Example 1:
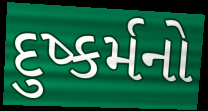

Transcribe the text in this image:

દુષ્કર્મનો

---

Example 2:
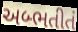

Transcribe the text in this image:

અબ્ભતીતં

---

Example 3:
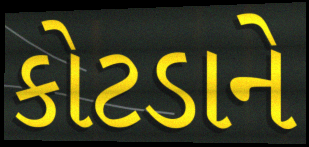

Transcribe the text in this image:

કોટડાને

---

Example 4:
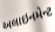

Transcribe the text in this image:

અલાઇનમેન્ટ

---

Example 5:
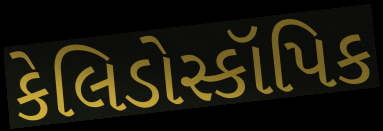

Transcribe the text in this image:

કેલિડોસ્કૉપિક